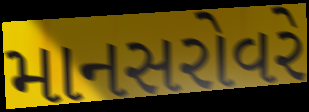
માનસરોવરે